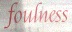
foulness